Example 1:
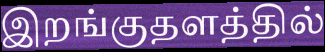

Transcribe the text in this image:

இறங்குதளத்தில்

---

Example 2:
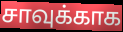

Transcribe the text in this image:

சாவுக்காக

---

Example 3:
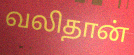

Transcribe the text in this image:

வலிதான்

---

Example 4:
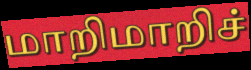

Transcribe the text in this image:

மாறிமாறிச்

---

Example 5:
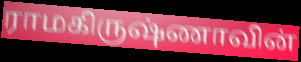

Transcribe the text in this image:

ராமகிருஷ்ணாவின்